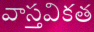
వాస్తవికత